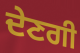
ਦੇਣਗੀ